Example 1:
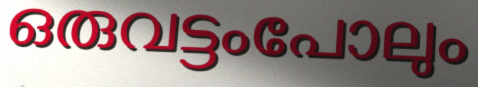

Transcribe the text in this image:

ഒരുവട്ടംപോലും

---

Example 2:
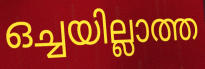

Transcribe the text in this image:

ഒച്ചയില്ലാത്ത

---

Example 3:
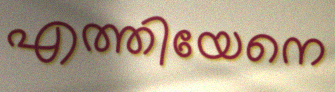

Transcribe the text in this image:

എത്തിയേനെ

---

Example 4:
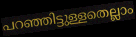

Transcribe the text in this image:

പറഞ്ഞിട്ടുള്ളതെല്ലാം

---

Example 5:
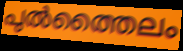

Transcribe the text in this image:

പുൽത്തൈലം